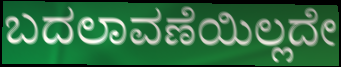
ಬದಲಾವಣೆಯಿಲ್ಲದೇ